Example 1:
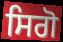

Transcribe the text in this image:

ਸਿਗੋ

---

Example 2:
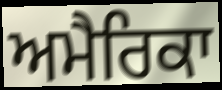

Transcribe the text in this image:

ਅਮੈਰਿਕਾ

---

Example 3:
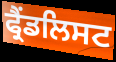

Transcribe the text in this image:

ਫ੍ਰੈਂਡਲਿਸਟ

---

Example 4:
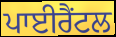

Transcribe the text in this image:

ਪਾਈਰੈਂਟਲ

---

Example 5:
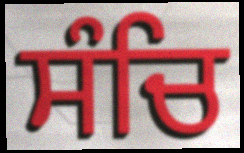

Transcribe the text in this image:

ਸੰਚਿ